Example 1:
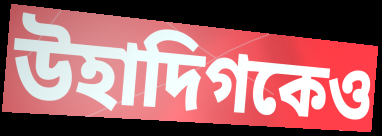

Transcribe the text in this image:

উহাদিগকেও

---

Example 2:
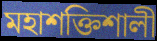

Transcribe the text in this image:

মহাশক্তিশালী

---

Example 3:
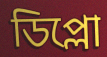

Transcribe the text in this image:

ডিপ্লো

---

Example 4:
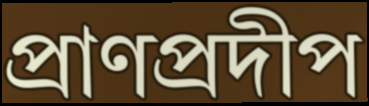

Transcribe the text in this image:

প্রাণপ্রদীপ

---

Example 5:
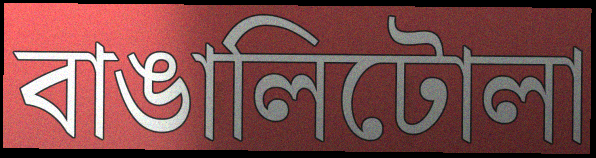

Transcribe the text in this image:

বাঙালিটোলা